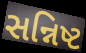
સન્નિષ્ટ